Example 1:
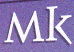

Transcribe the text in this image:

Mk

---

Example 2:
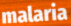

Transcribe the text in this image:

malaria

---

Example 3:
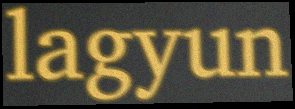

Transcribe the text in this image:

lagyun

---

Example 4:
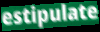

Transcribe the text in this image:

estipulate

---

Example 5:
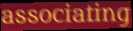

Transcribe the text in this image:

associating